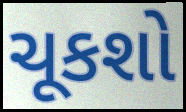
ચૂકશો